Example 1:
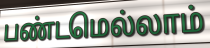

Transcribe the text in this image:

பண்டமெல்லாம்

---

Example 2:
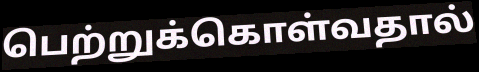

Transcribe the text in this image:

பெற்றுக்கொள்வதால்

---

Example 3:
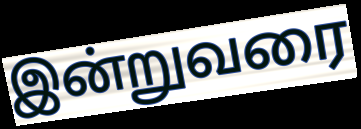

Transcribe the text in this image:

இன்றுவரை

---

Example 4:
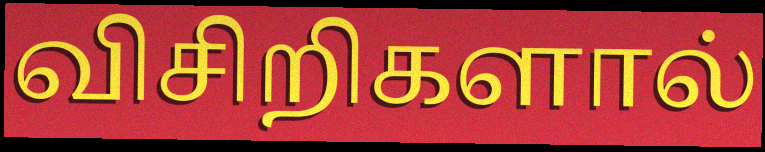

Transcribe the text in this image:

விசிறிகளால்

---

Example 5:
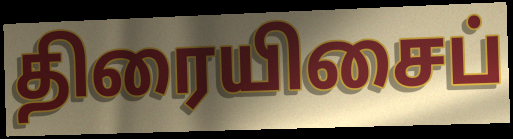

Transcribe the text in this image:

திரையிசைப்